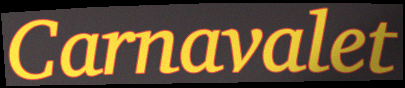
Carnavalet